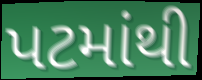
પટમાંથી